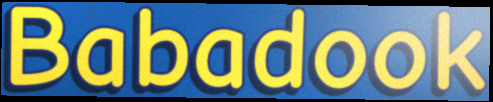
Babadook